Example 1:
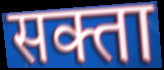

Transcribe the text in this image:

सक्‍ता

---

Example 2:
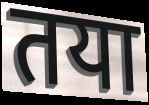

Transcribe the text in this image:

तया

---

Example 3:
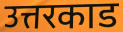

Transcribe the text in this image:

उत्तरकाड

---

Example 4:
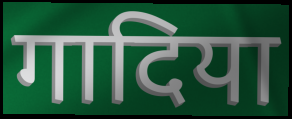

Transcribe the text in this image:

गादिया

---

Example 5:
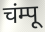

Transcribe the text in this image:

चंम्पू